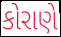
કોરાણે